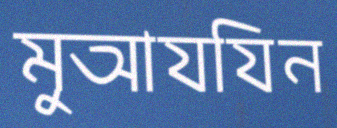
মুআযযিন